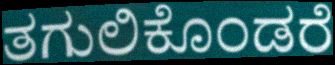
ತಗುಲಿಕೊಂಡರೆ